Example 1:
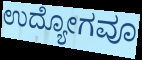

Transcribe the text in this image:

ಉದ್ಯೋಗವೂ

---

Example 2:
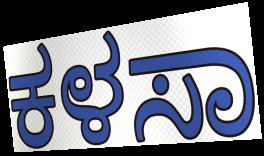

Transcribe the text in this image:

ಕಳಸಾ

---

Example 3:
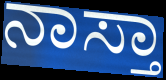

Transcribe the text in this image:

ನಾಸ್ತಾ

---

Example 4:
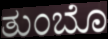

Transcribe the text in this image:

ತುಂಬೊ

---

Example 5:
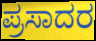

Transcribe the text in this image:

ಪ್ರಸಾದರ